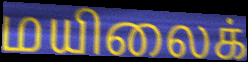
மயிலைக்